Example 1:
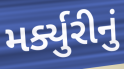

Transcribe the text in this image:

મર્ક્યુરીનું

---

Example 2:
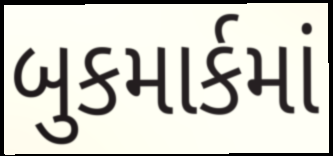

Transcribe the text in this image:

બુકમાર્કમાં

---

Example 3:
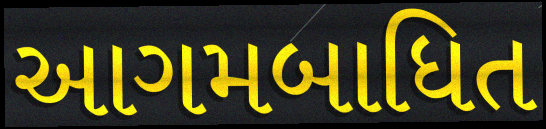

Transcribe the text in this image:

આગમબાધિત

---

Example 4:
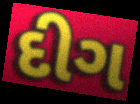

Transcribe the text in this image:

દીગ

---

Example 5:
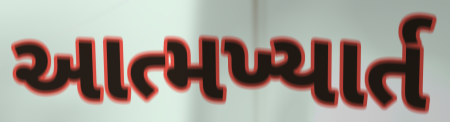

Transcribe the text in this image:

આત્મખ્યાર્ત